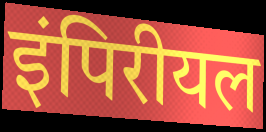
इंपिरीयल